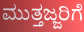
ಮುತ್ತಜ್ಜರಿಗೆ